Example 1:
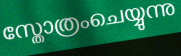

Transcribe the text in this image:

സ്തോത്രംചെയ്യുന്നു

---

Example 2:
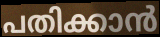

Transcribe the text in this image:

പതിക്കാൻ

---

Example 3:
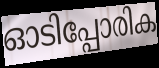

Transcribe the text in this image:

ഓടിപ്പോരിക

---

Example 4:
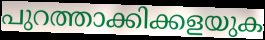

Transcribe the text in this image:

പുറത്താക്കിക്കളയുക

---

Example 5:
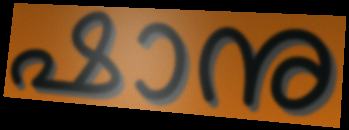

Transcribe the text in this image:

ഷാനു